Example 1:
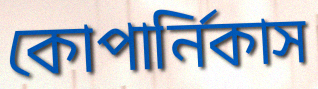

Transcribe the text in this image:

কোপার্নিকাস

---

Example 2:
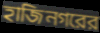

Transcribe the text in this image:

হাজিনগরের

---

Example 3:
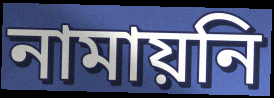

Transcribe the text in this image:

নামায়নি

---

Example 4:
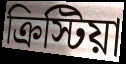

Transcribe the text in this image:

ক্রিস্টিয়া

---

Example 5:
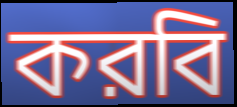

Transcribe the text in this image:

করবি